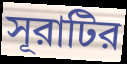
সূরাটির